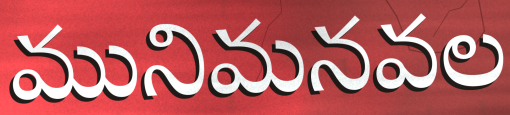
మునిమనవల